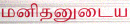
மனிதனுடைய